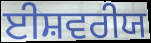
ਈਸ਼ਵਰੀਯ